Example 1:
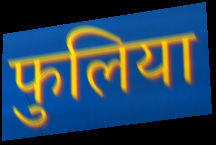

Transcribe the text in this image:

फुलिया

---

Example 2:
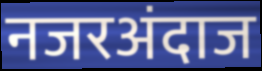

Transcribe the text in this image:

नजरअंदाज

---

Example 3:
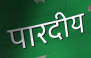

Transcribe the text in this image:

पारदीय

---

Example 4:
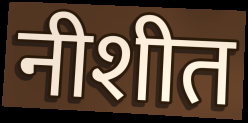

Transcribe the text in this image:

नीशीत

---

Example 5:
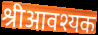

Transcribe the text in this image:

श्रीआवश्यक